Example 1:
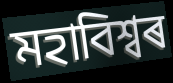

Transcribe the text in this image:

মহাবিশ্বৰ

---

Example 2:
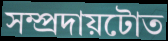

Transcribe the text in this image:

সম্প্ৰদায়টোত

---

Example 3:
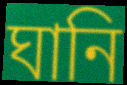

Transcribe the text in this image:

ঘানি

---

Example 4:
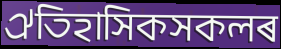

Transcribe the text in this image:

ঐতিহাসিকসকলৰ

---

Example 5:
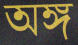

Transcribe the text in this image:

অঙ্গ